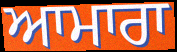
ਆਮਾਰਾ